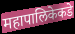
महापालिकेकडे